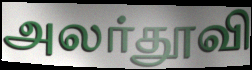
அலர்தூவி